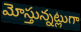
మోస్తున్నట్లుగా